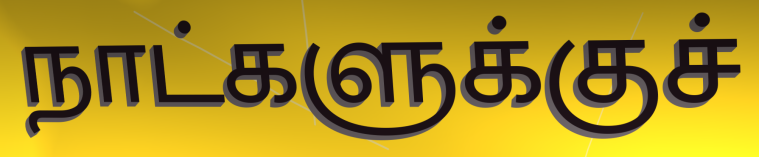
நாட்களுக்குச்